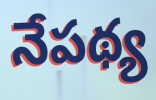
నేపథ్య